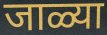
जाळ्या